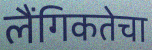
लैंगिकतेचा